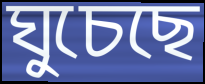
ঘুচেছে